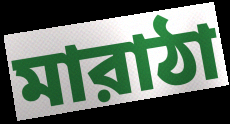
মারাঠা